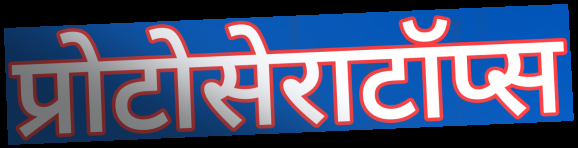
प्रोटोसेराटॉप्स